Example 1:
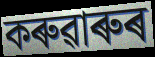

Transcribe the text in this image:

কৰুৱাৰুৰ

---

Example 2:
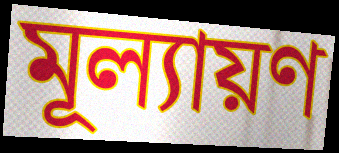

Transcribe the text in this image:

মূল্যায়ণ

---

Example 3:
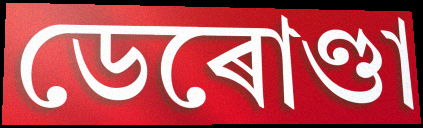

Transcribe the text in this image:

ডেৰোণ্ডা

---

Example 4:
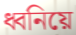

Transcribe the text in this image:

ধ্বনিয়ে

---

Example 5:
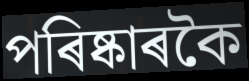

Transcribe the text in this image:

পৰিষ্কাৰকৈ